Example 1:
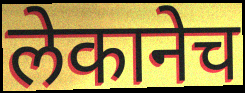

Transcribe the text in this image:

लेकानेच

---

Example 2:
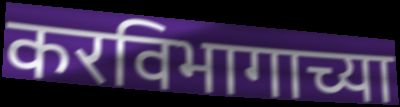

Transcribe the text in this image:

करविभागाच्या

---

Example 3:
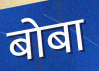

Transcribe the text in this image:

बोबा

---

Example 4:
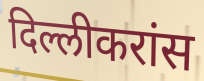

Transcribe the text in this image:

दिल्लीकरांस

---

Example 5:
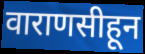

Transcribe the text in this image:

वाराणसीहून